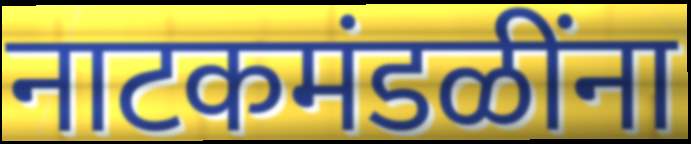
नाटकमंडळींना